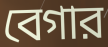
বেগার